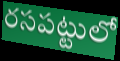
రసపట్టులో